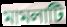
মামলাটি